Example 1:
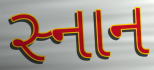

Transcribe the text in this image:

સ્નાન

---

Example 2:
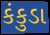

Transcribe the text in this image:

કંકુડા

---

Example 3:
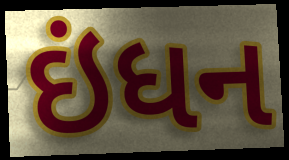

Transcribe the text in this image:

ઇંધન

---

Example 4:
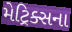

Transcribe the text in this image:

મેટ્રિક્સના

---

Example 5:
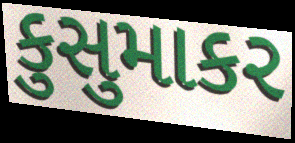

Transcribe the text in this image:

કુસુમાકર